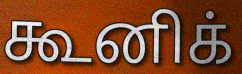
கூனிக்